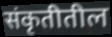
संकृतीतील